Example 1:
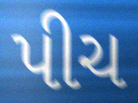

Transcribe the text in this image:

પીચ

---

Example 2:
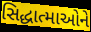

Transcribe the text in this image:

સિદ્ધાત્માઓને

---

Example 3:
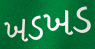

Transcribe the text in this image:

ખડખડ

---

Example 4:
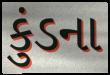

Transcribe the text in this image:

કુંડના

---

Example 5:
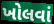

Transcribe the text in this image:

ખોલવાં